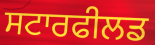
ਸਟਾਰਫੀਲਡ